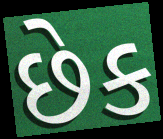
છેક